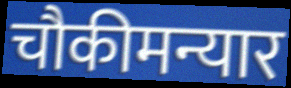
चौकीमन्यार